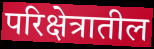
परिक्षेत्रातील